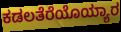
ಕಡಲತೆರೆಯೊಯ್ಯಾರ